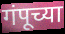
गंपूच्या